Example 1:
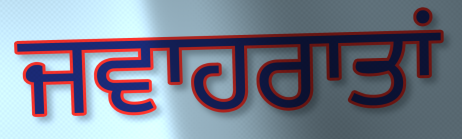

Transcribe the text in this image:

ਜਵਾਹਰਾਤਾਂ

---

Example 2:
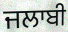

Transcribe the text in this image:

ਜਲਾਬੀ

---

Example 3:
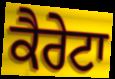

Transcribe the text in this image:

ਕੈਰੇਟਾ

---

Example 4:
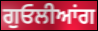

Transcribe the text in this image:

ਗੁਓਲੀਆਂਗ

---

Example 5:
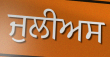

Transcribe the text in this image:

ਜੁਲੀਅਸ